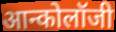
आन्कोलॉजी